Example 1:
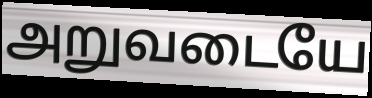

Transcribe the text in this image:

அறுவடையே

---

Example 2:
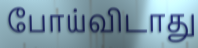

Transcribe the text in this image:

போய்விடாது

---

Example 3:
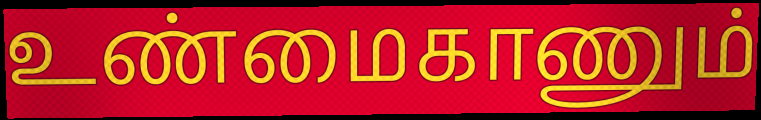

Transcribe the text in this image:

உண்மைகாணும்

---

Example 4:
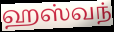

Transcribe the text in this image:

ஹஸ்வந்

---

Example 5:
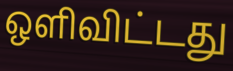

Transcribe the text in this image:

ஒளிவிட்டது